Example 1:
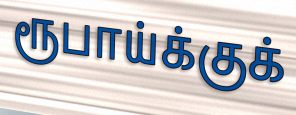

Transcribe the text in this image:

ரூபாய்க்குக்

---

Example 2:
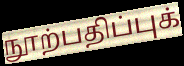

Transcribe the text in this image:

நூற்பதிப்புக்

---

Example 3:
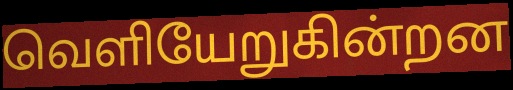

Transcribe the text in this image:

வெளியேறுகின்றன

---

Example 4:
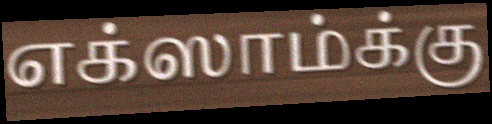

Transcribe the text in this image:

எக்ஸாம்க்கு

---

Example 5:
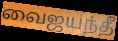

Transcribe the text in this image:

வைஜயந்தீ